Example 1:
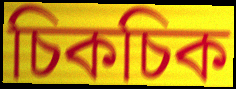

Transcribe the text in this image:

চিকচিক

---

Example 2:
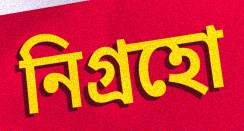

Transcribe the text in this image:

নিগ্রহো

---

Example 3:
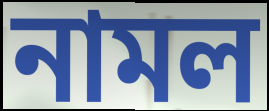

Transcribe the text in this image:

নামল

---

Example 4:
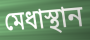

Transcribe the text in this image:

মেধাস্থান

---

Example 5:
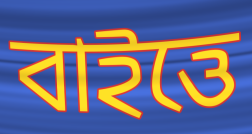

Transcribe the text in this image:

বাইত্তে